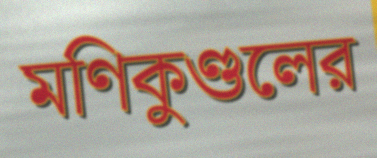
মণিকুণ্ডলের